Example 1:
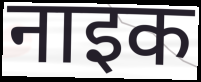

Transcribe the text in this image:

नाइक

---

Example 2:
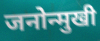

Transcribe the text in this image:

जनोन्मुखी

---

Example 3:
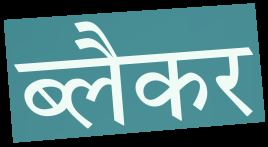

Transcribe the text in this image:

ब्लैकर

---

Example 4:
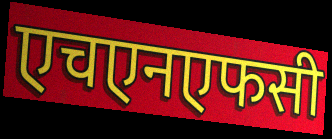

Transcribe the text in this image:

एचएनएफसी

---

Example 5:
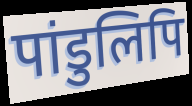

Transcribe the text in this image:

पांडुलिपि